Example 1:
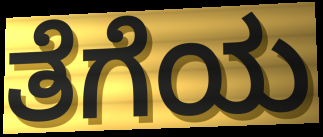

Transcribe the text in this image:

ತೆಗೆಯ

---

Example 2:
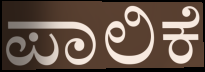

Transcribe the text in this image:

ಪಾಲಿಕೆ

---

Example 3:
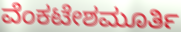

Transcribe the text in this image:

ವೆಂಕಟೇಶಮೂರ್ತಿ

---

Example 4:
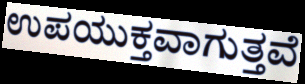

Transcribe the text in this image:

ಉಪಯುಕ್ತವಾಗುತ್ತವೆ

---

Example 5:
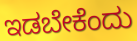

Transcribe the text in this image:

ಇಡಬೇಕೆಂದು